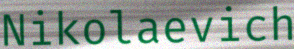
Nikolaevich